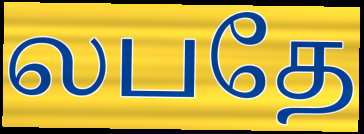
லபதே